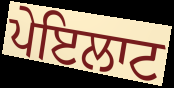
ਪੇਇਲਾਟ